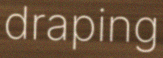
draping